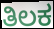
ತಿಲಕ